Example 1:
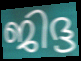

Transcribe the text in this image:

ജിദ്ദ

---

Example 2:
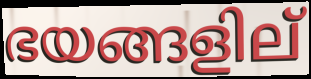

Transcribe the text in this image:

ഭയങ്ങളില്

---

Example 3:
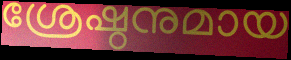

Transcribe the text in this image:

ശ്രേഷ്ഠനുമായ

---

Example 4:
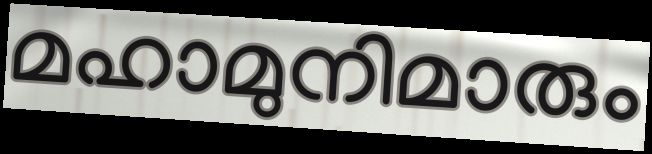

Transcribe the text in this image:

മഹാമുനിമാരും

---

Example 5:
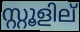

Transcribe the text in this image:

സ്റ്റൂളില്